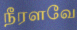
நீரளவே